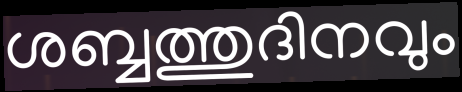
ശബ്ബത്തുദിനവും